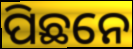
ପିଛନେ